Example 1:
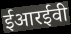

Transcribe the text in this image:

ईआरईवी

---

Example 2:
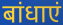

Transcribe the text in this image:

बांधाएं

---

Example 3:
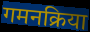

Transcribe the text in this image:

गमनक्रिया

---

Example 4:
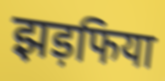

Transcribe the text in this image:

झड़फिया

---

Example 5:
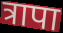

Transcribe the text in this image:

त्रापा